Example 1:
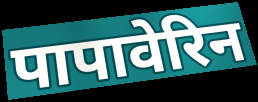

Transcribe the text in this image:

पापावेरिन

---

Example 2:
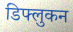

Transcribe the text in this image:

डिफ्लुकन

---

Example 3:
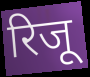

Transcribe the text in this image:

रिजू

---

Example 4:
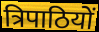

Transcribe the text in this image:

त्रिपाठियों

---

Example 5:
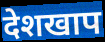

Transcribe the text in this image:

देशखाप